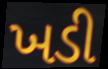
ખડી